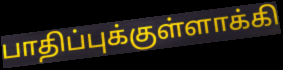
பாதிப்புக்குள்ளாக்கி